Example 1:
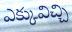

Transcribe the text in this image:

ఎక్కువిచ్చి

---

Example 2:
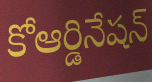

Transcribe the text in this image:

కోఆర్డినేషన్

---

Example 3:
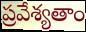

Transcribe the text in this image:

ప్రవేశ్యతాం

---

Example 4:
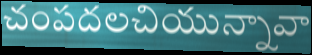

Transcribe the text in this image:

చంపదలచియున్నావా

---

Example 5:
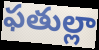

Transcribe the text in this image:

ఫతుల్లా